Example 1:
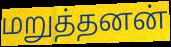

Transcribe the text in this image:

மறுத்தனன்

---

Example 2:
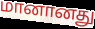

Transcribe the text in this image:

மானானது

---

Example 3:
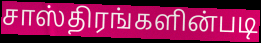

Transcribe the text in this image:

சாஸ்திரங்களின்படி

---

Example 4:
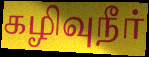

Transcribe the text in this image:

கழிவுநீர்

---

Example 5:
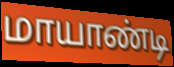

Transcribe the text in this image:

மாயாண்டி